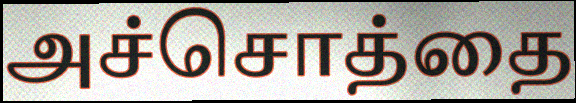
அச்சொத்தை